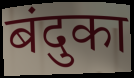
बंदुका